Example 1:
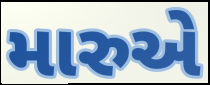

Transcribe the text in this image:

મારુએ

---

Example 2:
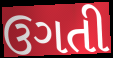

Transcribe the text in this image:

ઉગતી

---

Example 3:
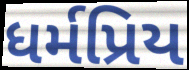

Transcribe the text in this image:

ધર્મપ્રિય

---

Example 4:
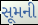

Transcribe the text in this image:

સૂમની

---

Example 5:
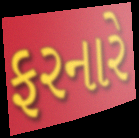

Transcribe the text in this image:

ફરનારે